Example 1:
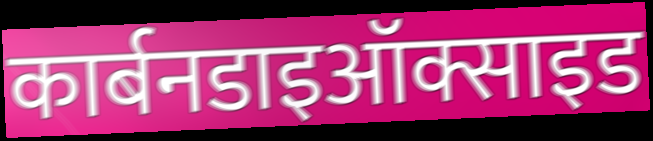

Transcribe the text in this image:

कार्बनडाइऑक्साइड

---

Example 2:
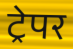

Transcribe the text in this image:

ट्रेपर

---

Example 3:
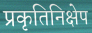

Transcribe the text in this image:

प्रकृतिनिक्षेप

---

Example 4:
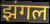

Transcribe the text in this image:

झंगल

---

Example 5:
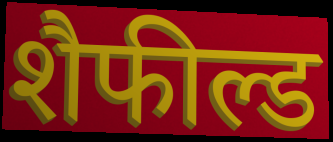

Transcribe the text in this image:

शैफील्ड